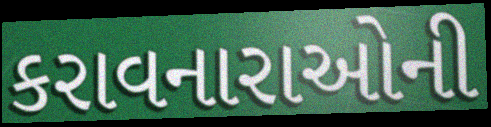
કરાવનારાઓની